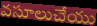
వసూలుచేయు